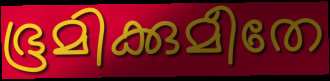
ഭൂമിക്കുമീതേ